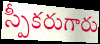
స్పీకరుగారు